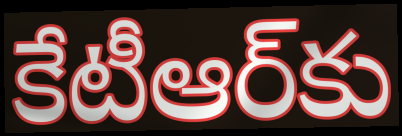
కేటీఆర్‌కు